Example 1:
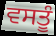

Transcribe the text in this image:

ਵਸਤੂੰ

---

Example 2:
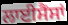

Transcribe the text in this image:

ਲਾਈਸੈਂਸਾਂ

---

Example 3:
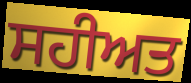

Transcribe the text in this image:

ਸਹੀਅਤ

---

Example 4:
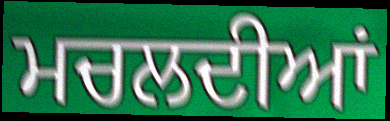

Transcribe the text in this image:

ਮਚਲਦੀਆਂ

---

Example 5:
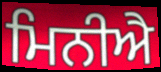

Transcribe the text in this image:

ਮਿਨੀਐ